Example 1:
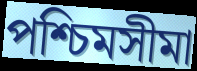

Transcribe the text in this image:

পশ্চিমসীমা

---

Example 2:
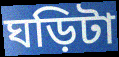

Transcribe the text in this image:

ঘড়িটা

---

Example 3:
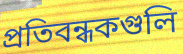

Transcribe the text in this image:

প্রতিবন্ধকগুলি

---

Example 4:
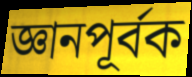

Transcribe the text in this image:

জ্ঞানপূর্বক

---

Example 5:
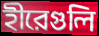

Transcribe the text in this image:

হীরেগুলি